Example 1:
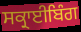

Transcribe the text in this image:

ਸਕ੍ਰਾਈਬਿੰਗ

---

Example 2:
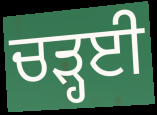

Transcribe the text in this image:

ਚੜ੍ਹਈ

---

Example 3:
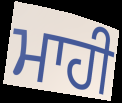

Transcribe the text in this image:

ਮਾਹੀ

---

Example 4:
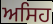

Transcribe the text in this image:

ਅਸਿਹ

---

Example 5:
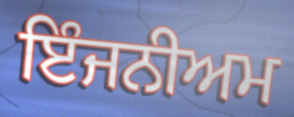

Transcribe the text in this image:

ਇੰਜਨੀਅਮ